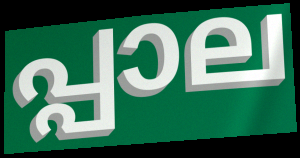
പ്പാല